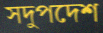
সদুপদেশ